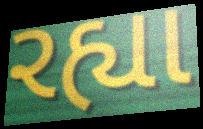
રહ્યા